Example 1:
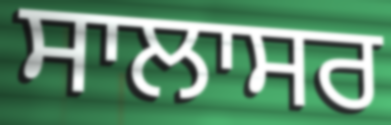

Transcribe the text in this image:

ਸਾਲਾਸਰ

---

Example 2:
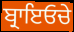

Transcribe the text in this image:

ਬ੍ਰਾਇਓਚੇ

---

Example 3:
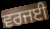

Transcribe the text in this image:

ਵਰਜਈ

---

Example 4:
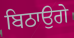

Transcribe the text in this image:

ਬਿਠਾਉਗੇ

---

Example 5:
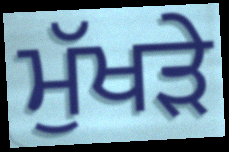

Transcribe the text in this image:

ਮੁੱਖੜੇ